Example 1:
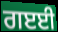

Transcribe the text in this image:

ਗੲਈ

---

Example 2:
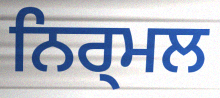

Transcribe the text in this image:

ਨਿਰ੍ਮਲ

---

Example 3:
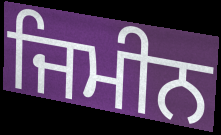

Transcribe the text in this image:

ਜਿਮੀਨ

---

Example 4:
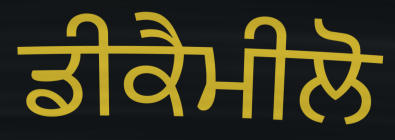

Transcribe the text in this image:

ਡੀਕੈਮੀਲੋ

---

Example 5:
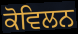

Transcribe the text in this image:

ਕੋਵਿਲਨ